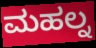
ಮಹಲ್ನ